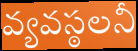
వ్యవస్ఠలనీ